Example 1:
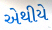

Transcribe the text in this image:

એથીયે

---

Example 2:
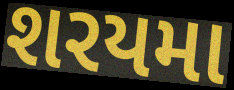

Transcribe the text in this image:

શરયમા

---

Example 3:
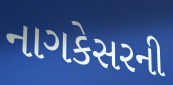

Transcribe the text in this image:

નાગકેસરની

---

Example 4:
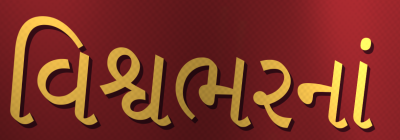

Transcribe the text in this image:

વિશ્વભરનાં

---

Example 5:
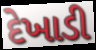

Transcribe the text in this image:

દેખાડી